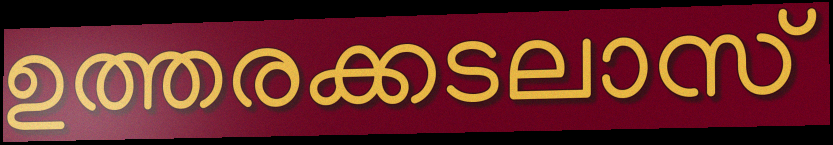
ഉത്തരക്കടലാസ്